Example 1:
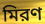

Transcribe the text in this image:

মিরণ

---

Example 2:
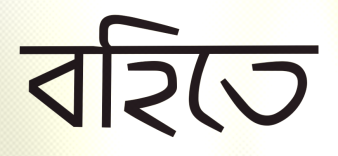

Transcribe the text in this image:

বহিতে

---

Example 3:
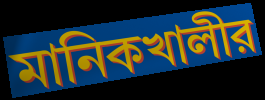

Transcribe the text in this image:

মানিকখালীর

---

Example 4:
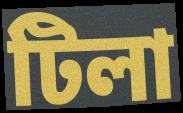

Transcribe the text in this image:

টিলা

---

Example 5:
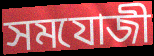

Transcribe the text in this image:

সমযোজী